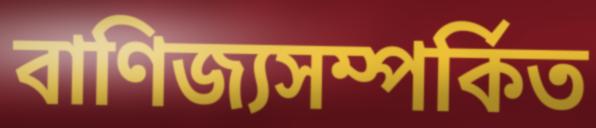
বাণিজ্যসম্পর্কিত